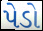
પેડો